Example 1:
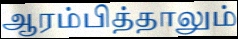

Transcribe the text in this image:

ஆரம்பித்தாலும்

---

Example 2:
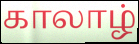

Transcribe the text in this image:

காலாழ்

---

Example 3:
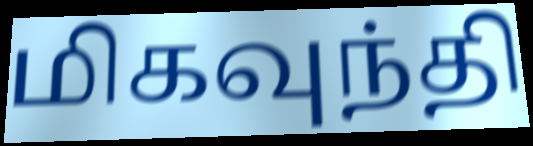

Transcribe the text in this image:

மிகவுந்தி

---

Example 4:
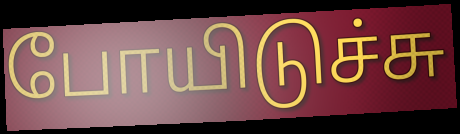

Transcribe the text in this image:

போயிடுச்சு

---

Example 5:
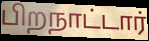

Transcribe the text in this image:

பிறநாட்டார்